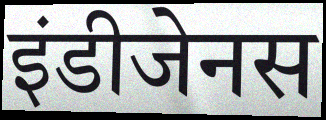
इंडीजेनस